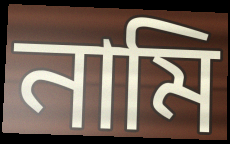
নামি